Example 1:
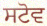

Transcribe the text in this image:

ਸਟੋਵ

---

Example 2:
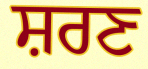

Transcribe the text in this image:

ਸ਼ਰਣ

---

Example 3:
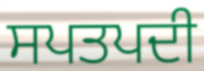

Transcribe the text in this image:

ਸਪਤਪਦੀ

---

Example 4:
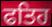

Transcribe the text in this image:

ਫਤਿਹ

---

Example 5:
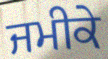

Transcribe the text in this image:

ਜਮੀਕੇ